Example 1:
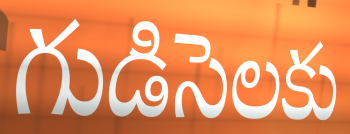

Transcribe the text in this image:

గుడిసెలకు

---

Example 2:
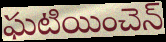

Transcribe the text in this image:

ఘటియించెన్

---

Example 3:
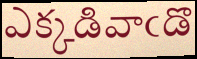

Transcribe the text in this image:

ఎక్కడివాఁడొ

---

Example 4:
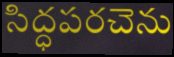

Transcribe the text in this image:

సిద్ధపరచెను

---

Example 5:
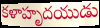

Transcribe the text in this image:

కళాహృదయుడు